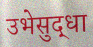
उभेसुद्धा